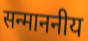
सन्माननीय